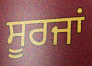
ਸੂਰਜਾਂ